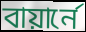
বায়ার্নে